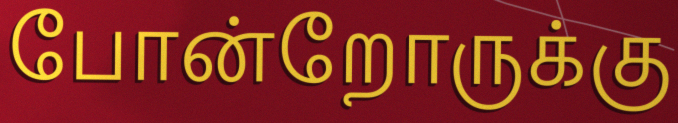
போன்றோருக்கு